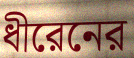
ধীরেনের